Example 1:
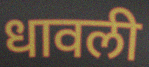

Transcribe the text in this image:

धावली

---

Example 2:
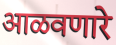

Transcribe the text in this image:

आळवणारे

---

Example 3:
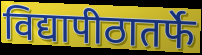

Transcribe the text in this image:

विद्यापीठातर्फे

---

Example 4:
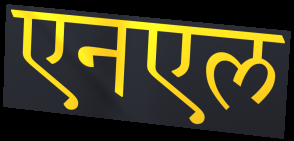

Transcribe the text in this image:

एनएल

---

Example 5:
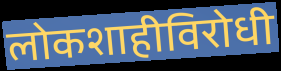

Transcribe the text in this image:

लोकशाहीविरोधी